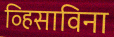
व्हिसाविना